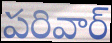
పరివార్